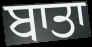
ਬਾਤਾ